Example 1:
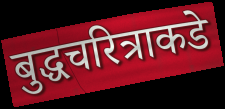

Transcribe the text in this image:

बुद्धचरित्राकडे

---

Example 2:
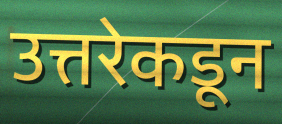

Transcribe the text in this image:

उत्तरेकडून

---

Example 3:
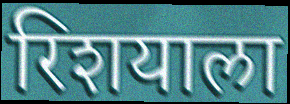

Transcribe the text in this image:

रिशयाला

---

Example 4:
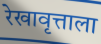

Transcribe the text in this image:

रेखावृत्ताला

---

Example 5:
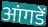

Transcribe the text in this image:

आंगडें